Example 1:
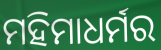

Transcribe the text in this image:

ମହିମାଧର୍ମର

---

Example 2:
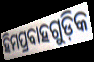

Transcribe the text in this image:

ହିମପ୍ରବାହଗୁଡ଼ିକ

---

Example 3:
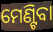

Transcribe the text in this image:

ମେଣ୍ଟିବା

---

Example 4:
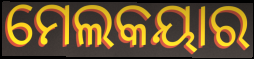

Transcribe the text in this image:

ମେଲକୟାର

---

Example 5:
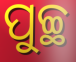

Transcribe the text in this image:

ପୁଚ୍ଛ